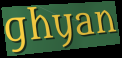
ghyan